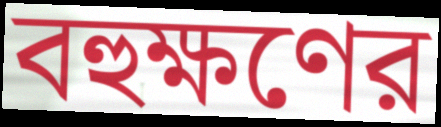
বহুক্ষণের